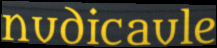
nudicaule